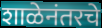
शाळेनंतरचे